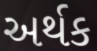
અર્થક